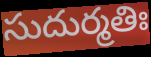
సుదుర్మతిః